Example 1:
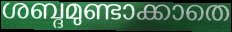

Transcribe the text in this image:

ശബ്ദമുണ്ടാക്കാതെ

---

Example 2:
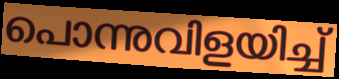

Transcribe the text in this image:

പൊന്നുവിളയിച്ച്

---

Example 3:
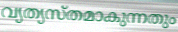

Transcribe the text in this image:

വ്യത്യസ്തമാകുന്നതും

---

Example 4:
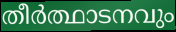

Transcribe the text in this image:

തീർത്ഥാടനവും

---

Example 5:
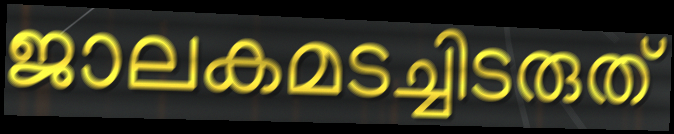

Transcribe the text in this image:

ജാലകമടച്ചിടരുത്